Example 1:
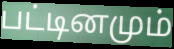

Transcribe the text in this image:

பட்டினமும்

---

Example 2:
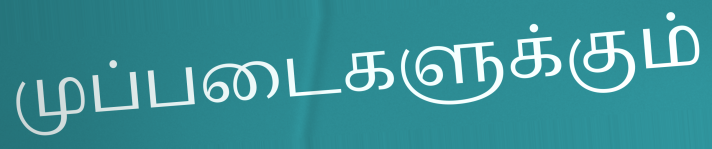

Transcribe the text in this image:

முப்படைகளுக்கும்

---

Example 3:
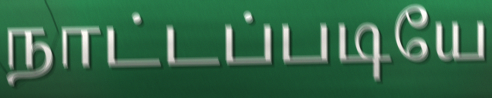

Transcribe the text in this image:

நாட்டப்படியே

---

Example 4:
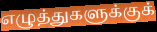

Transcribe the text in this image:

எழுத்துகளுக்குக்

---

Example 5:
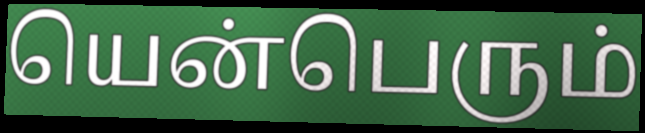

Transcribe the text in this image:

யென்பெரும்